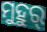
ମୁହୁର୍